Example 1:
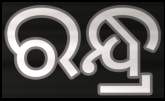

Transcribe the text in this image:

ରନ୍ଧ୍ର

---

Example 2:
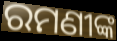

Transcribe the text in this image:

ରମଣୀଙ୍କ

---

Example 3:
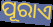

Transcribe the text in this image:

ପୂରାଏ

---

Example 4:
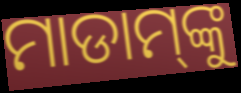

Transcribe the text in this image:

ମାଡାମ୍‌ଙ୍କୁ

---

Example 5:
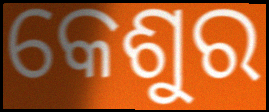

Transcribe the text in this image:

କେଶୁର